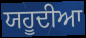
ਯਹੂਦੀਆ